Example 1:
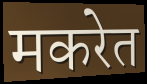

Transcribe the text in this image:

मकरेत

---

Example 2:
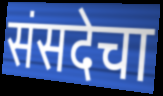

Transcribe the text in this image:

संसदेचा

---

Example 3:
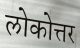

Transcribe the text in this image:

लोकोत्तर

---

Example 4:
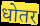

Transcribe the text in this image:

धोतर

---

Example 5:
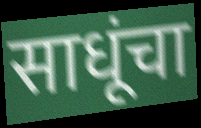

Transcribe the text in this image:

साधूंचा